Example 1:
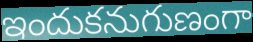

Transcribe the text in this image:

ఇందుకనుగుణంగా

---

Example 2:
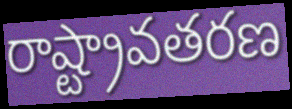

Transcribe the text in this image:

రాష్ట్రావతరణ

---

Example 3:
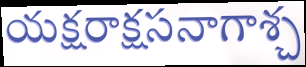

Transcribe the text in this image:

యక్షరాక్షసనాగాశ్చ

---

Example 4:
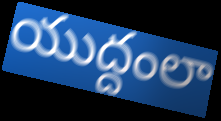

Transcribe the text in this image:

యుద్దంలా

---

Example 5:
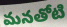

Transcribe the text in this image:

మనతోటి